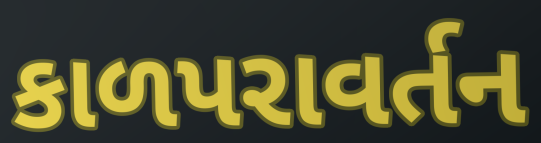
કાળપરાવર્તન